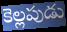
కెల్లపుడు